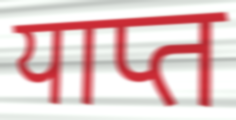
याप्त